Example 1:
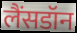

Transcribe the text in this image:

लैंसडॉन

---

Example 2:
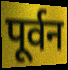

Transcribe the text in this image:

पूर्वन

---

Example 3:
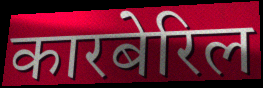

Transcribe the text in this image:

कारबेरिल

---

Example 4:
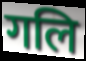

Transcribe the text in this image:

गलि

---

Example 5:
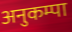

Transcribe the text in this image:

अनुकम्‍पा